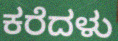
ಕರೆದಳು